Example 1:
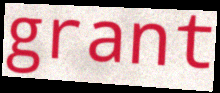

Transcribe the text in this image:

grant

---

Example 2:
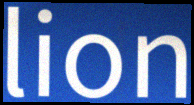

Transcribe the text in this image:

lion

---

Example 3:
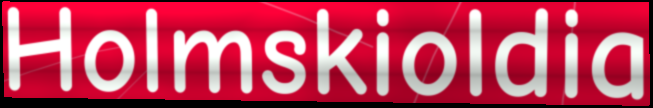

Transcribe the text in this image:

Holmskioldia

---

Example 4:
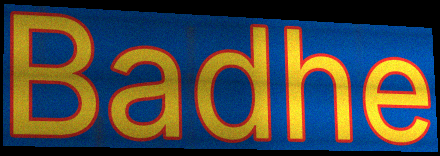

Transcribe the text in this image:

Badhe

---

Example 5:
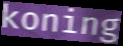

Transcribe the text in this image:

koning